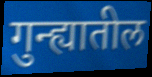
गुन्ह्यातील